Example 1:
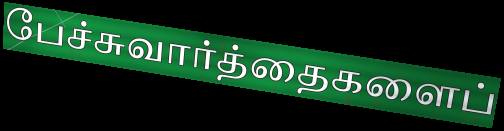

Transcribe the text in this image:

பேச்சுவார்த்தைகளைப்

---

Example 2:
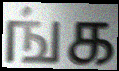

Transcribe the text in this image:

ங்க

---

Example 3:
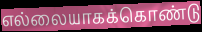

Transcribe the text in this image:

எல்லையாகக்கொண்டு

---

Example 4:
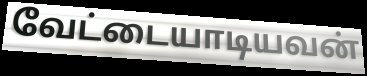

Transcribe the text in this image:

வேட்டையாடியவன்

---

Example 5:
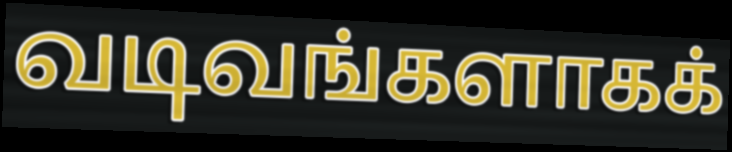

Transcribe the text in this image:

வடிவங்களாகக்